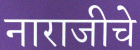
नाराजीचे